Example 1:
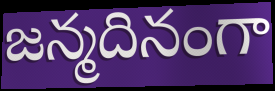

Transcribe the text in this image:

జన్మదినంగా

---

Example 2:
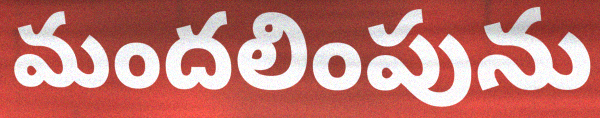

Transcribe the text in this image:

మందలింపును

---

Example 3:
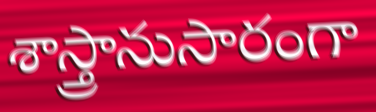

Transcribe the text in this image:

శాస్త్రానుసారంగా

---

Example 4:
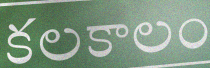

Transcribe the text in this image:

కలకాలం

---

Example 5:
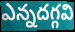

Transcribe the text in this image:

ఎన్నదగ్గవి